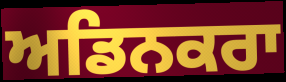
ਅਡਿਨਕਰਾ